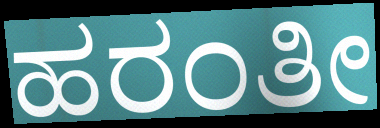
ಹರಂತೀ